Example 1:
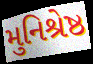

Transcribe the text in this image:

મુનિશ્રેષ્ઠ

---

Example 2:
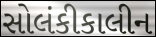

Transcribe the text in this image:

સોલંકીકાલીન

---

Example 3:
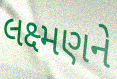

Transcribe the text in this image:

લક્ષ્મણને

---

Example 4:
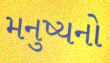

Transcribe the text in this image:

મનુષ્યનો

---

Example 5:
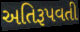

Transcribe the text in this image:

અતિરૂપવતી